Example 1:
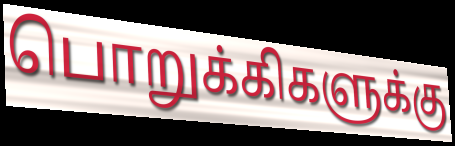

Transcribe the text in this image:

பொறுக்கிகளுக்கு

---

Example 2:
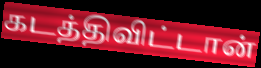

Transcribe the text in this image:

கடத்திவிட்டான்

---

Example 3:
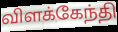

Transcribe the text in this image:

விளக்கேந்தி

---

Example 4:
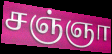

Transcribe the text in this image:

சஞ்ஞா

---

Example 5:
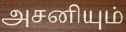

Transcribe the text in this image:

அசனியும்